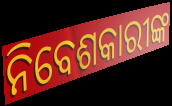
ନିବେଶକାରୀଙ୍କ